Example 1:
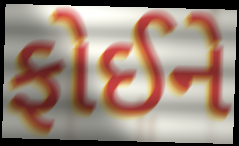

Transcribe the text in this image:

ફોઈને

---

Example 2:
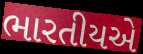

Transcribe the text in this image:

ભારતીયએ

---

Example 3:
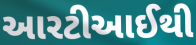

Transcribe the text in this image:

આરટીઆઈથી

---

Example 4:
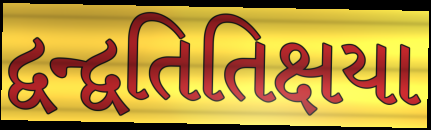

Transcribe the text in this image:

દ્વન્દ્વતિતિક્ષયા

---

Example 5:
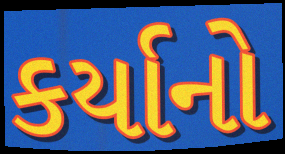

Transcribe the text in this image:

કર્યાનો